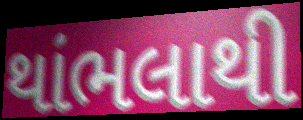
થાંભલાથી